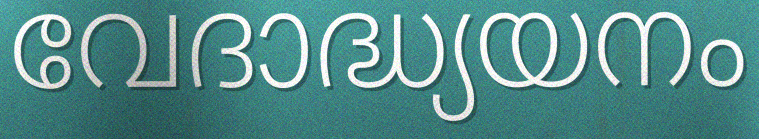
വേദാദ്ധ്യയനം